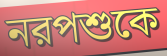
নরপশুকে